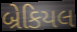
બ્રેકિયલ